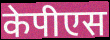
केपीएस